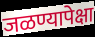
जळण्यापेक्षा